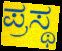
ಪ್ರಸ್ಥ